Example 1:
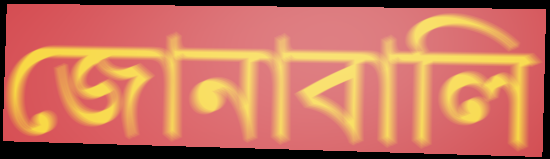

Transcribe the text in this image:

জোনাবালি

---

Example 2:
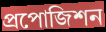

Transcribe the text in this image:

প্রপোজিশন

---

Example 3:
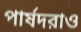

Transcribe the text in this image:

পার্ষদরাও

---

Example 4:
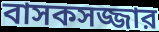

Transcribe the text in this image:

বাসকসজ্জার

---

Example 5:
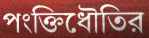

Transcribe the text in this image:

পংক্তিধৌতির